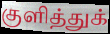
குளித்துக்